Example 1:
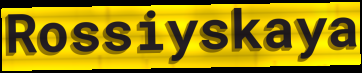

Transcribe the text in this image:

Rossiyskaya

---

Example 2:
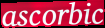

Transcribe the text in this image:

ascorbic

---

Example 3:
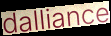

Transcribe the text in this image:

dalliance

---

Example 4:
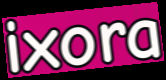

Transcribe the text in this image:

ixora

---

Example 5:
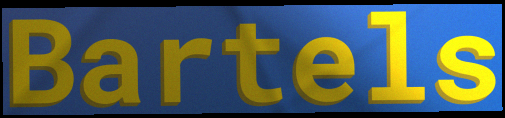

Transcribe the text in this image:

Bartels